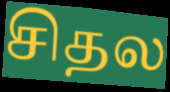
சிதல